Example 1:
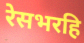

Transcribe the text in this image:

रेसभरहि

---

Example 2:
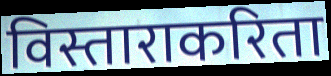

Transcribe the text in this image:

विस्ताराकरिता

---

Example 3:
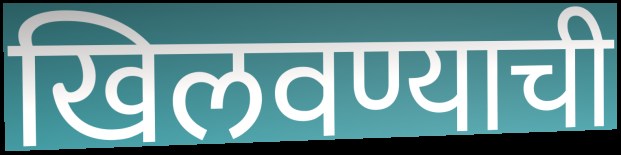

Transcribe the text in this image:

खिलवण्याची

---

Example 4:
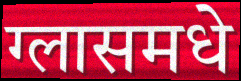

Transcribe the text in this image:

ग्लासमधे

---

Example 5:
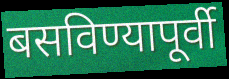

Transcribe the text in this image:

बसविण्यापूर्वी